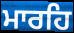
ਮਾਰਹਿ